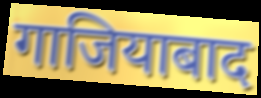
गाजियाबाद